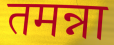
तमन्ना